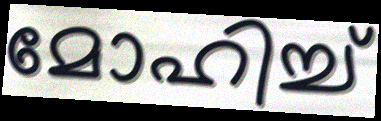
മോഹിച്ച്